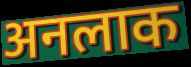
अनलाक